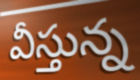
వీస్తున్న